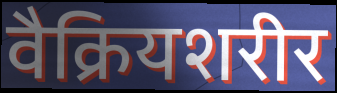
वैक्रियशरीर